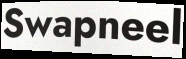
Swapneel